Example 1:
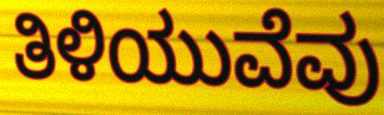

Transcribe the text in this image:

ತಿಳಿಯುವೆವು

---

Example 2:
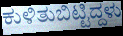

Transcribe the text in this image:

ಕುಳಿತುಬಿಟ್ಟಿದ್ದಳು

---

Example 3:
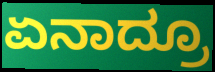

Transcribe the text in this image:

ಏನಾದ್ರೂ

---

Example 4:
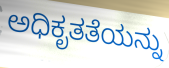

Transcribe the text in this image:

ಅಧಿಕೃತತೆಯನ್ನು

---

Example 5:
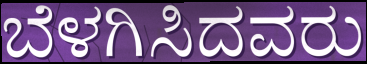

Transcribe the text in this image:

ಬೆಳಗಿಸಿದವರು